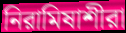
নিরামিষাশীরা